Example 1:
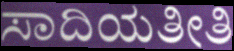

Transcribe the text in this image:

ಸಾದಿಯತೀತಿ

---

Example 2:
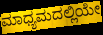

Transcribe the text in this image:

ಮಾಧ್ಯಮದಲ್ಲಿಯೇ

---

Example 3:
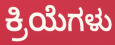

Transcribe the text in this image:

ಕ್ರಿಯೆಗಳು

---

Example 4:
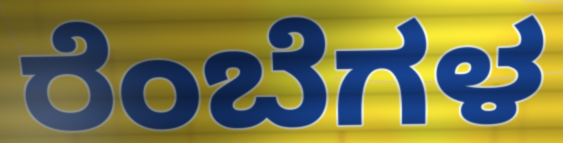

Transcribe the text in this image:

ರೆಂಬೆಗಳ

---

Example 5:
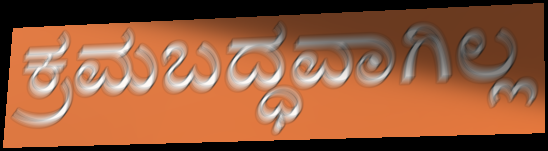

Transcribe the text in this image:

ಕ್ರಮಬದ್ಧವಾಗಿಲ್ಲ